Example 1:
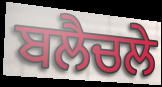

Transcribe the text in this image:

ਬਲੈਚਲੇ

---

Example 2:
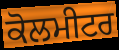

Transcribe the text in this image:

ਕੋਲਮੀਟਰ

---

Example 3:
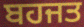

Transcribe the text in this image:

ਬਹਜਤ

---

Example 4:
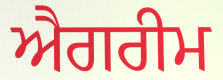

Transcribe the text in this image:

ਐਗਰੀਮ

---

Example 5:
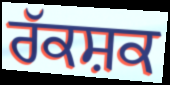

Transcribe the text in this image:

ਰੱਕਸ਼ਕ